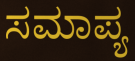
ಸಮಾಪ್ಯ